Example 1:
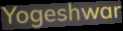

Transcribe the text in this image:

Yogeshwar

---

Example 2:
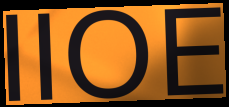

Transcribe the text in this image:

IIOE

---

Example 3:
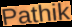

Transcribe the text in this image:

Pathik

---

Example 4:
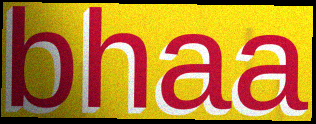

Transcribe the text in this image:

bhaa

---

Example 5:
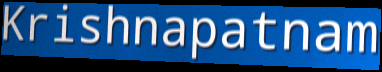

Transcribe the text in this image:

Krishnapatnam